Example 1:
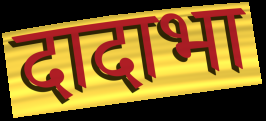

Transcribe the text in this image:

दादाभा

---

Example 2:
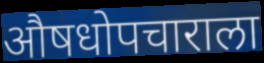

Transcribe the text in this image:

औषधोपचाराला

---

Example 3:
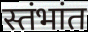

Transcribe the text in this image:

स्तंभांत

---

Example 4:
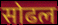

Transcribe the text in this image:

सोढल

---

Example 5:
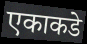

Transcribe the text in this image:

एकाकडे